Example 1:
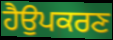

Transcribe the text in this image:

ਹੈਉਪਕਰਣ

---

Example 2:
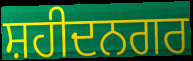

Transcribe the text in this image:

ਸ਼ਹੀਦਨਗਰ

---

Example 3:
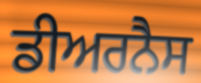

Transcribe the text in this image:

ਡੀਅਰਨੈਸ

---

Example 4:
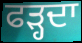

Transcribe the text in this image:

ਫੜ੍ਹਦਾ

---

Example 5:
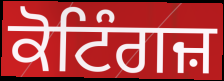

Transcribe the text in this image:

ਕੋਟਿੰਗਜ਼